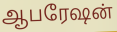
ஆபரேஷன்